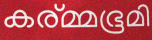
കര്മ്മഭൂമി